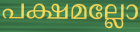
പക്ഷമല്ലോ